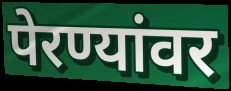
पेरण्यांवर